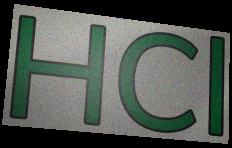
HCl